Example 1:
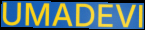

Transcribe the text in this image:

UMADEVI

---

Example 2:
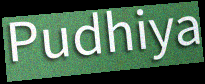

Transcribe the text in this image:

Pudhiya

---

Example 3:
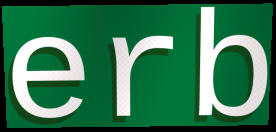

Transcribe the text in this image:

erb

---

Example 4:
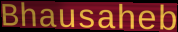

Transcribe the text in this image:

Bhausaheb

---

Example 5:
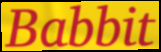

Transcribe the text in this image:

Babbit